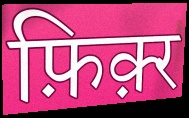
फ़िक़्र